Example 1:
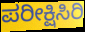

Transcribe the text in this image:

ಪರೀಕ್ಷಿಸಿರಿ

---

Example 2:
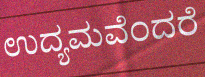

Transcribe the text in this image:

ಉದ್ಯಮವೆಂದರೆ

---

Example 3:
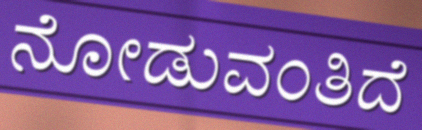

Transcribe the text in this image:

ನೋಡುವಂತಿದೆ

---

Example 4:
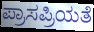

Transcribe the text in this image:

ಪ್ರಾಸಪ್ರಿಯತೆ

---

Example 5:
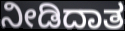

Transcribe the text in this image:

ನೀಡಿದಾತ